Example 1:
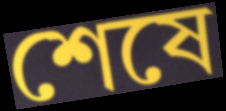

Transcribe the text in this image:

শেষে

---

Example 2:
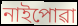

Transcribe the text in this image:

নাইপোৱা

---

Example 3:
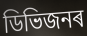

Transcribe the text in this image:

ডিভিজনৰ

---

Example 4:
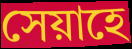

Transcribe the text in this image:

সেয়াহে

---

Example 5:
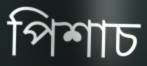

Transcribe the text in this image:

পিশাচ